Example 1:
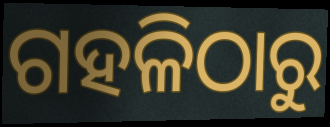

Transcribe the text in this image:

ଗହଳିଠାରୁ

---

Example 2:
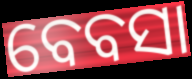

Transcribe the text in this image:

ବେବସା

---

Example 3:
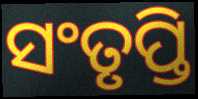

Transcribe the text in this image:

ସଂତୃପ୍ତି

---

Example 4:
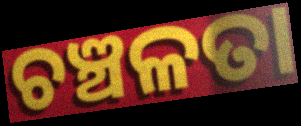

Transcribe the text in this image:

ଚଞ୍ଚଳତା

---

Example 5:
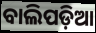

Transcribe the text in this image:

ବାଲିପଡ଼ିଆ